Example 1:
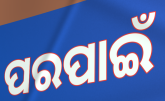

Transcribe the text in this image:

ପରପାଇଁ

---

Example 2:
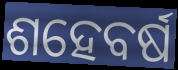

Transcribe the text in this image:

ଶହେବର୍ଷ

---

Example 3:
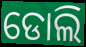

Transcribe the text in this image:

ଡୋଲି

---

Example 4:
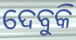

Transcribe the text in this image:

ଦେବୁକି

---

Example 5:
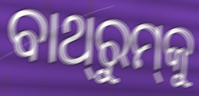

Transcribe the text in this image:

ବାଥ୍‌ରୁମ୍‌କୁ